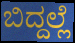
ಬಿದ್ದಲ್ಲೆ